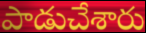
పాడుచేశారు